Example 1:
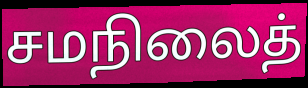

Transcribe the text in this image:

சமநிலைத்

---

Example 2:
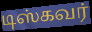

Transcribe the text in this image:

டிஸ்கவர்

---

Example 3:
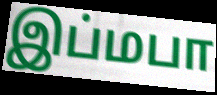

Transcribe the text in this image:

இப்மபா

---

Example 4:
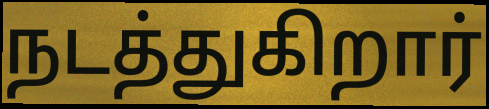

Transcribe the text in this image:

நடத்துகிறார்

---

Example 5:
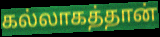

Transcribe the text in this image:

கல்லாகத்தான்